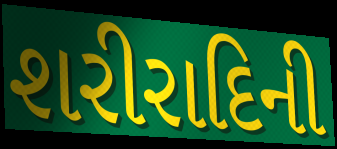
શરીરાદિની